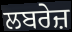
ਲਬਰੇਜ਼